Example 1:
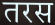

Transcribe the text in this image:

तरस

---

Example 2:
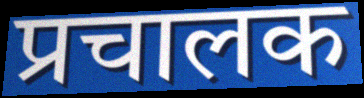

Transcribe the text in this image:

प्रचालक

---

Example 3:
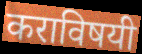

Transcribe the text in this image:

कराविषयी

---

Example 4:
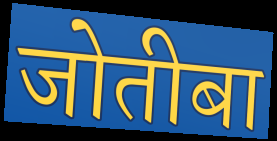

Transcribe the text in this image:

जोतीबा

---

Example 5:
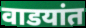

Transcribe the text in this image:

वाडयांत